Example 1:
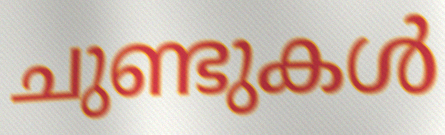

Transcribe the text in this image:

ചുണ്ടുകൾ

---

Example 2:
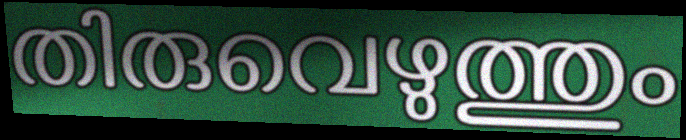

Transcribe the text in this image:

തിരുവെഴുത്തും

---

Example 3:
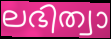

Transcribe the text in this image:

ലഭിത്വാ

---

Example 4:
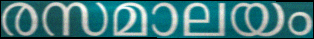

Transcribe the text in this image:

രസമാലയം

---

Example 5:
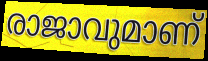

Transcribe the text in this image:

രാജാവുമാണ്